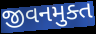
જીવનમુક્ત